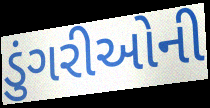
ડુંગરીઓની